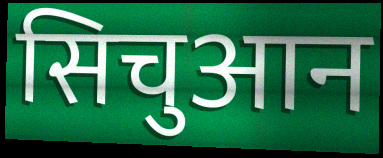
सिचुआन